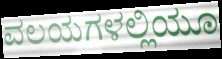
ವಲಯಗಳಲ್ಲಿಯೂ